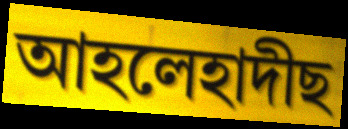
আহলেহাদীছ